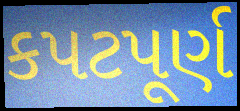
કપટપૂર્ણ